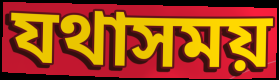
যথাসময়